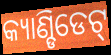
କ୍ୟାଣ୍ଡିଡେଟ୍